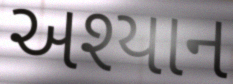
અશ્યાન